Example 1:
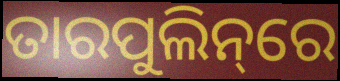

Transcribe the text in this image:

ତାରପୁଲିନ୍‌ରେ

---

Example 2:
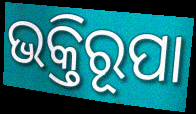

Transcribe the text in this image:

ଭକ୍ତିରୂପା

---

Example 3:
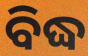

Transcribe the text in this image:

ବିଦ୍ଧ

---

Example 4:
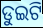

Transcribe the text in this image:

ଡୁଇଟି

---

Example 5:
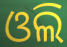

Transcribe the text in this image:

ଓଲି